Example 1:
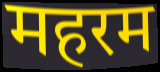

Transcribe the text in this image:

महरम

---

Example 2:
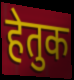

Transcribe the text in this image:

हेतुक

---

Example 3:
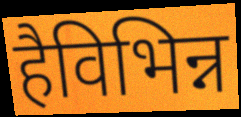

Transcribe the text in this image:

हैविभिन्न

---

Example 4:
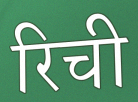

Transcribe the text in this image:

रिची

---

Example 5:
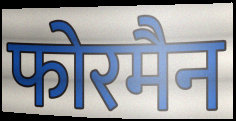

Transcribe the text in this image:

फोरमैन